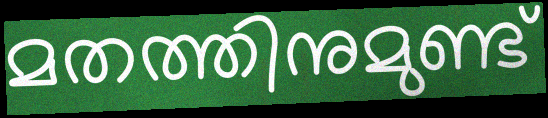
മതത്തിനുമുണ്ട്